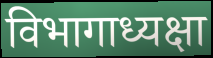
विभागाध्यक्षा